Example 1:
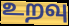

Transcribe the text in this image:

உறவு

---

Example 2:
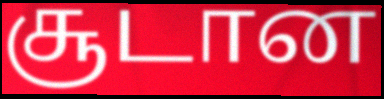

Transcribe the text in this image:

சூடான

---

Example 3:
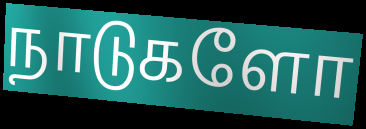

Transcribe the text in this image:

நாடுகளோ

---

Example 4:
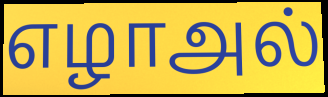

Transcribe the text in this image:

எழாஅல்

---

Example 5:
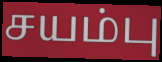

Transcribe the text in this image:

சயம்பு